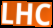
LHC